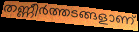
തണ്ണീർത്തടങ്ങളാണ്